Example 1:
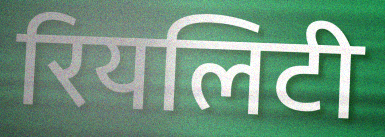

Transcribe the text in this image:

रियलिटी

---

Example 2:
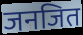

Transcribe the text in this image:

जनजित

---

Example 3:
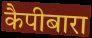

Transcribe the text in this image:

कैपीबारा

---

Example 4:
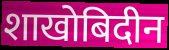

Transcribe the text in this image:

शाखोबिदीन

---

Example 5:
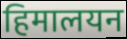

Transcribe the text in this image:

हिमालयन